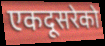
एकदूसरेको